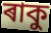
ৰাকু